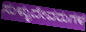
ಸುಳ್ಳುದೇವರುಗಳ